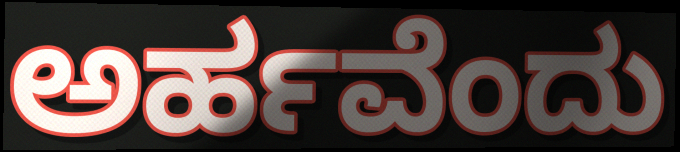
ಅರ್ಹವೆಂದು